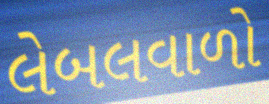
લેબલવાળો